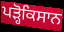
ਪੜ੍ਹੋਕਿਸਾਨ